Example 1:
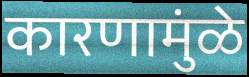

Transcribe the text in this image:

कारणामुंळे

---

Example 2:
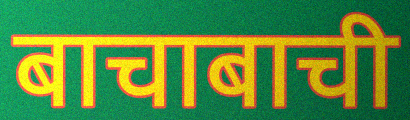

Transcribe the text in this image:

बाचाबाची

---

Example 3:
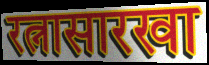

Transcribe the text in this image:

रत्नासारखा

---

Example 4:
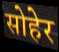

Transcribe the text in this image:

सोहेर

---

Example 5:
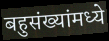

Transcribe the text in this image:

बहुसंख्यांमध्ये